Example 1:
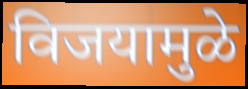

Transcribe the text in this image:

विजयामुळे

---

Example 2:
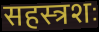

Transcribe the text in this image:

सहस्त्रशः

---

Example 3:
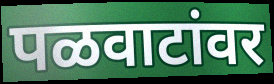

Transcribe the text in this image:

पळवाटांवर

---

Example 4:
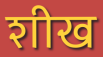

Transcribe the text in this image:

शीख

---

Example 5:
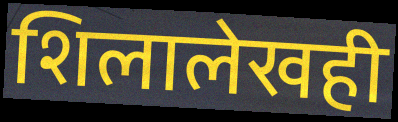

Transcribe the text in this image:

शिलालेखही